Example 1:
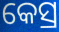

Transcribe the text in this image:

କେସ୍ର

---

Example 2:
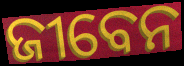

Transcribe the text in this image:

ଜୀବେନ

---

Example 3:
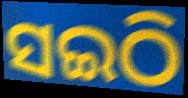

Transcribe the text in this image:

ସଇଠି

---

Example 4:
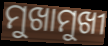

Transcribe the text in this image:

ମୁଖାମୁଖୀ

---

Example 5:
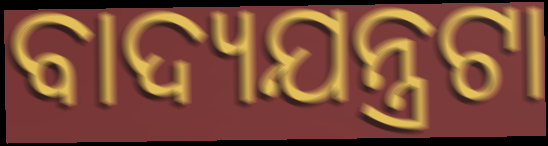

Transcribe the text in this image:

ବାଦ୍ୟଯନ୍ତ୍ରଟା